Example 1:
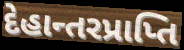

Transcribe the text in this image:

દેહાન્તરપ્રાપ્તિ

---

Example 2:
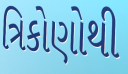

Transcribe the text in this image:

ત્રિકોણોથી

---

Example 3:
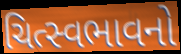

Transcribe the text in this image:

ચિત્સ્વભાવનો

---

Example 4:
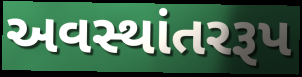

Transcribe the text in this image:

અવસ્થાંતરરૂપ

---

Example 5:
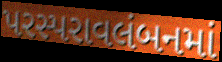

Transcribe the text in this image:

પરસ્પરાવલંબનમાં